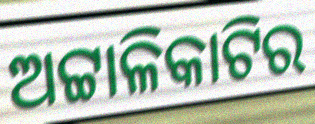
ଅଟ୍ଟାଳିକାଟିର